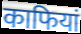
काफियां